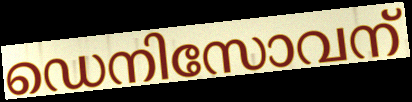
ഡെനിസോവന്